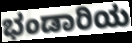
ಭಂಡಾರಿಯ